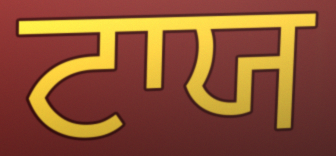
ਟਾਯ